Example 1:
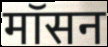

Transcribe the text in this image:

मॉसन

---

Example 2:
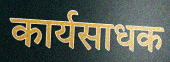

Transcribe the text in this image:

कार्यसाधक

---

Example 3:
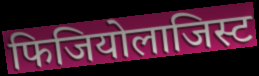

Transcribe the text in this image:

फिजियोलाजिस्ट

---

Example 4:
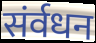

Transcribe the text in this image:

संर्वधन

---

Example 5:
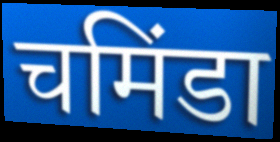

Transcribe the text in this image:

चमिंडा